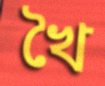
খৈ